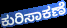
ಕುರಿಸಾಕಣೆ